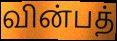
வின்பத்